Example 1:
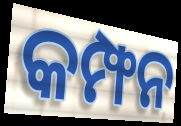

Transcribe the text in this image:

କମ୍ଫନ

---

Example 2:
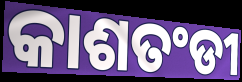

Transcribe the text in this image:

କାଶତଂଡୀ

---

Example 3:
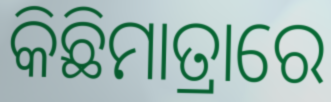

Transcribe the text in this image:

କିଛିମାତ୍ରାରେ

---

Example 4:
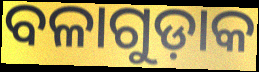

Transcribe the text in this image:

ବଳାଗୁଡ଼ାକ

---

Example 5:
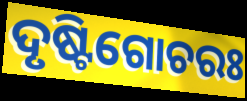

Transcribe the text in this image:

ଦୃଷ୍ଟିଗୋଚରଃ